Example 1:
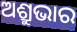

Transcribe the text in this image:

ଅଶ୍ରୁଭାର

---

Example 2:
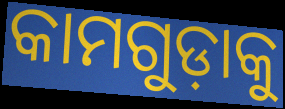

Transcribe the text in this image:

କାମଗୁଡ଼ାକୁ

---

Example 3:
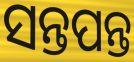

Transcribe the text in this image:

ସନ୍ତପନ୍ତ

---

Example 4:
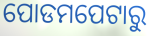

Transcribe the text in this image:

ପୋଡମପେଟାରୁ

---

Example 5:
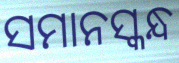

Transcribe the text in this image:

ସମାନସ୍କନ୍ଧ